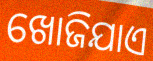
ଖୋଜିଯାଏ